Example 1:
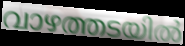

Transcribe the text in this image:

വാഴത്തടയിൽ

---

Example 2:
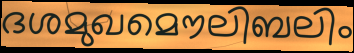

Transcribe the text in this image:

ദശമുഖമൌലിബലിം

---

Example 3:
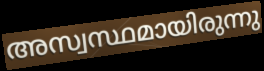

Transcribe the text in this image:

അസ്വസ്ഥമായിരുന്നു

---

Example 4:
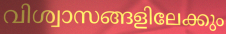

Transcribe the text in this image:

വിശ്വാസങ്ങളിലേക്കും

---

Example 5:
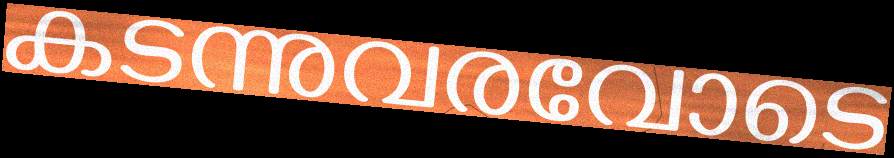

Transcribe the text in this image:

കടന്നുവരവോടെ